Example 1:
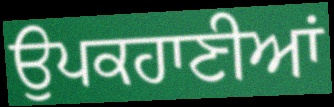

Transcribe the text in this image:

ਉਪਕਹਾਣੀਆਂ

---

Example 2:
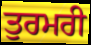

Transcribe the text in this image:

ਤੁਰਮਰੀ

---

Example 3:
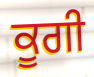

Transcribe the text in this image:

ਕੂਗੀ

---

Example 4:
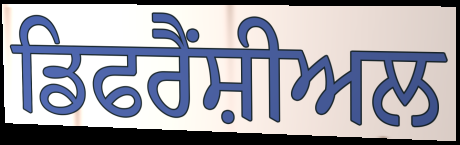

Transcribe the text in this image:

ਡਿਫਰੈਂਸ਼ੀਅਲ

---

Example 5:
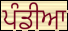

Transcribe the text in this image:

ਪੰਡੀਆ